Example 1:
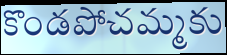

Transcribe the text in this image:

కొండపోచమ్మకు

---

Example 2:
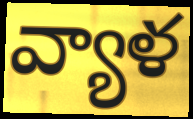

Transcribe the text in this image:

వ్యాళ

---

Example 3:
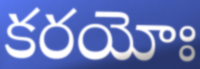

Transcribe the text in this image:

కరయోః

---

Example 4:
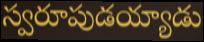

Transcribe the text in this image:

స్వరూపుడయ్యాడు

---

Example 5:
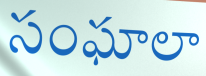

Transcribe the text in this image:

సంఘాలా